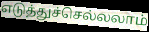
எடுத்துச்செல்லலாம்